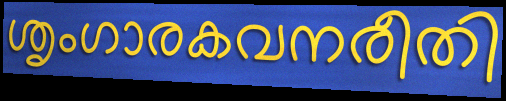
ശൃംഗാരകവനരീതി